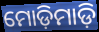
ମୋଡ଼ିମାଡ଼ି